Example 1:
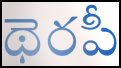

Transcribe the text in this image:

థెరపీ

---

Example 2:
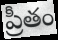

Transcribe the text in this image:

ప్రీతం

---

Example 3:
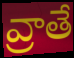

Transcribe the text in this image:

వ్రాతే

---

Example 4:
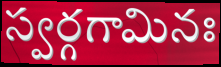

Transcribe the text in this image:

స్వర్గగామినః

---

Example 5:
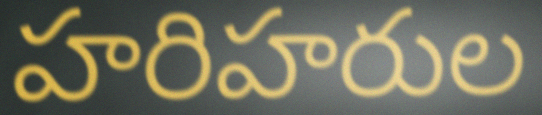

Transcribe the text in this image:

హరిహరుల